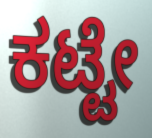
ಕಟ್ಟೇ